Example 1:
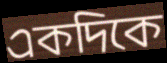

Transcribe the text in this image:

একদিকে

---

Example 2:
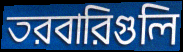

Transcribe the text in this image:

তরবারিগুলি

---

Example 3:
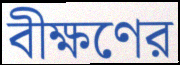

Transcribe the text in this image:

বীক্ষণের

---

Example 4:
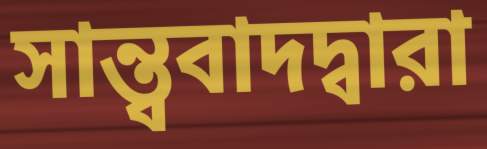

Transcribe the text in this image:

সান্ত্ববাদদ্বারা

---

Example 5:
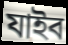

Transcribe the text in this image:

যাইব